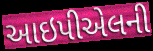
આઇપીએલની